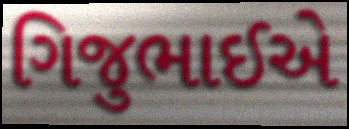
ગિજુભાઈએ